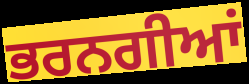
ਭਰਨਗੀਆਂ